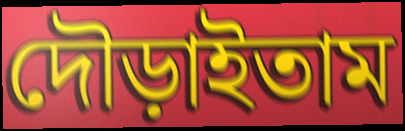
দৌড়াইতাম